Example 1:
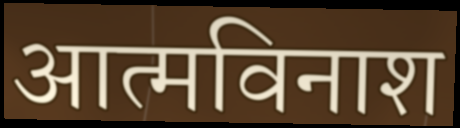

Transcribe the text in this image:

आत्मविनाश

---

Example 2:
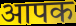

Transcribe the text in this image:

आपक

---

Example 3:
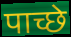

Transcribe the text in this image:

पाच्छे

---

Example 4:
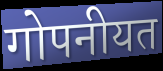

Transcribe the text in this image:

गोपनीयत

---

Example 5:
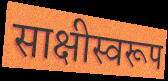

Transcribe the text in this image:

साक्षीस्वरूप